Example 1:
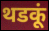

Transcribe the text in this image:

थडकूं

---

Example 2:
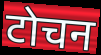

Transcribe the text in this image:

टोचन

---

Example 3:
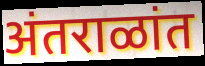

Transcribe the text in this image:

अंतराळांत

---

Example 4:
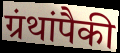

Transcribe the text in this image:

ग्रंथांपैकी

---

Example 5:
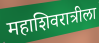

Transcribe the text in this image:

महाशिवरात्रीला